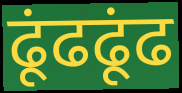
ढूंढढूंढ